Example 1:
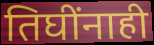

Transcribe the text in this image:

तिघींनाही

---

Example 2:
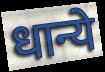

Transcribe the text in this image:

धान्ये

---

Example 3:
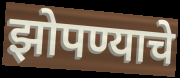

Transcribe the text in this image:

झोपण्याचे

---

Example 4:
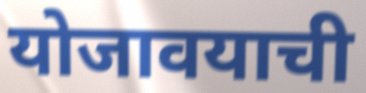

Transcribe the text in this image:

योजावयाची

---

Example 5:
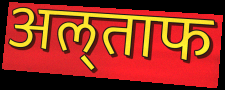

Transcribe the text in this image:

अल्ताफ